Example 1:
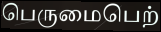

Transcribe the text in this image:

பெருமைபெற்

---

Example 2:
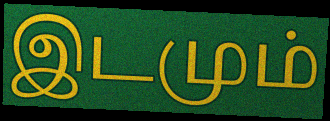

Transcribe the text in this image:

இடமும்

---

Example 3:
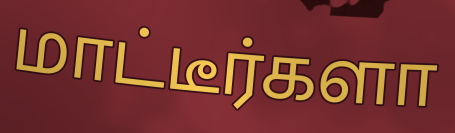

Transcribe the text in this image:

மாட்டீர்களா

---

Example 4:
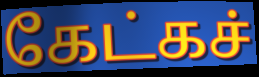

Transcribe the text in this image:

கேட்கச்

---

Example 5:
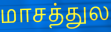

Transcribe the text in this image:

மாசத்துல